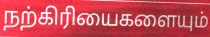
நற்கிரியைகளையும்